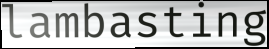
lambasting